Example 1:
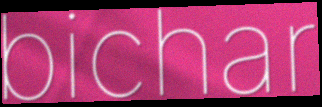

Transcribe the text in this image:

bichar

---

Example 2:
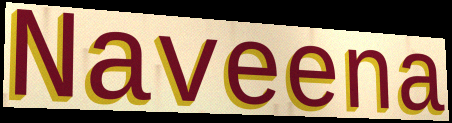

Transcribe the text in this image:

Naveena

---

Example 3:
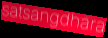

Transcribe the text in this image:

satsangdhara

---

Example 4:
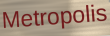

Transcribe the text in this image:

Metropolis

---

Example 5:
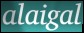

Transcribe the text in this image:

alaigal